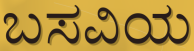
ಬಸವಿಯ